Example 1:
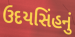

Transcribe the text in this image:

ઉદયસિંહનું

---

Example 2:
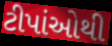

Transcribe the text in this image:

ટીપાંઓથી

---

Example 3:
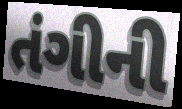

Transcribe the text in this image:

તંગીની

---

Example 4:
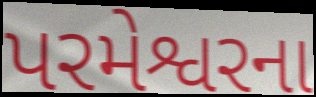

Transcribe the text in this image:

પરમેશ્વરના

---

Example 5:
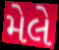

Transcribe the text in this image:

મેલે